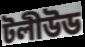
টলীউড